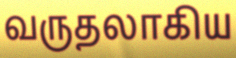
வருதலாகிய